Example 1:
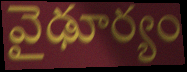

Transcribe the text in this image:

వైఢూర్యం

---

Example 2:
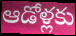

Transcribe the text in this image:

ఆడోళ్లకు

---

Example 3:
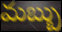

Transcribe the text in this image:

మబ్బు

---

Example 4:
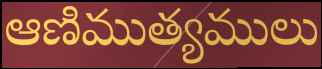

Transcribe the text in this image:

ఆణిముత్యములు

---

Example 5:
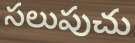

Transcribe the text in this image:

సలుపుచు